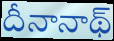
దీనానాథ్